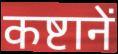
कष्टानें